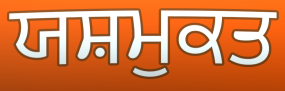
ਯਸ਼ਮੁਕਤ